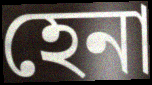
হেনা